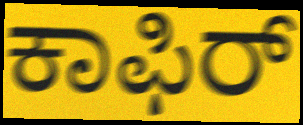
ಕಾಫಿರ್